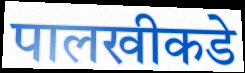
पालखीकडे